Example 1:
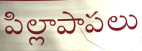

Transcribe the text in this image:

పిల్లాపాపలు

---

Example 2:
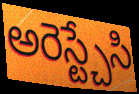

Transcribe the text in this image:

అరెస్ట్చేసి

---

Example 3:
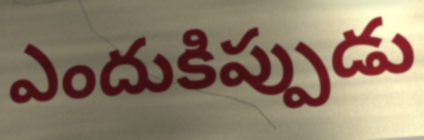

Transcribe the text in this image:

ఎందుకిప్పుడు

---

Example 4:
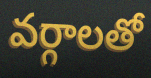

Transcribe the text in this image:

వర్గాలతో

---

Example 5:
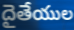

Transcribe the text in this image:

దైతేయుల